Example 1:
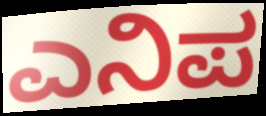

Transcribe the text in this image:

ಎನಿಪ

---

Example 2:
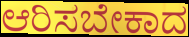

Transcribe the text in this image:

ಆರಿಸಬೇಕಾದ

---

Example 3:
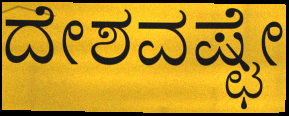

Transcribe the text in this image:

ದೇಶವಷ್ಟೇ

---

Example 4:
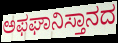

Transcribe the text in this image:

ಅಫಘಾನಿಸ್ತಾನದ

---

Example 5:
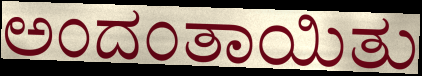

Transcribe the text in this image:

ಅಂದಂತಾಯಿತು